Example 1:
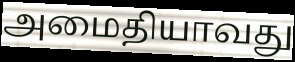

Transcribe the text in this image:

அமைதியாவது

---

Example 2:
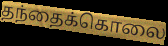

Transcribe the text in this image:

தந்தைக்கொலை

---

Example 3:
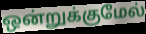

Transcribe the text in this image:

ஒன்றுக்குமேல்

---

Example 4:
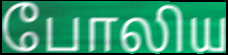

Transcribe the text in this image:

போலிய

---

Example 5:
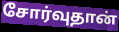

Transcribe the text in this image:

சோர்வுதான்